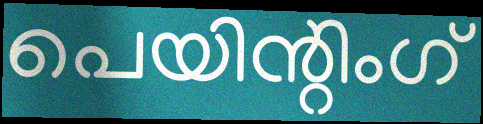
പെയിന്റിംഗ്